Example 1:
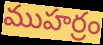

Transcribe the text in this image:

ముహర్రం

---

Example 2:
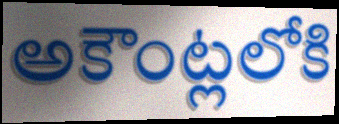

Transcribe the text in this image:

అకౌంట్లలోకి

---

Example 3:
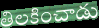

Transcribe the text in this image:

తిలకించాడు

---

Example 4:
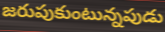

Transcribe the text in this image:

జరుపుకుంటున్నపుడు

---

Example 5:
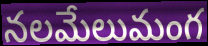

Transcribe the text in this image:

నలమేలుమంగ